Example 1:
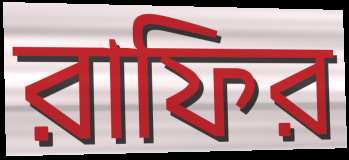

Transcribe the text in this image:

রাফির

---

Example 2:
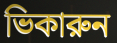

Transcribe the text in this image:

ভিকারুন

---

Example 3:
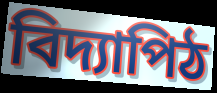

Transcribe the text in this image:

বিদ্যাপিঠ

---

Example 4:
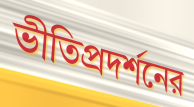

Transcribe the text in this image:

ভীতিপ্রদর্শনের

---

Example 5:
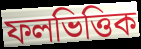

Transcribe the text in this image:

ফলভিত্তিক